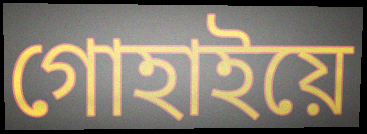
গোহাইয়ে